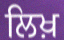
ਲਿਖ਼